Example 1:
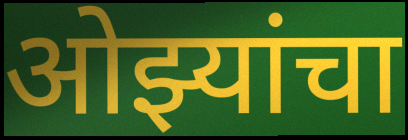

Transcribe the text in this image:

ओझ्यांचा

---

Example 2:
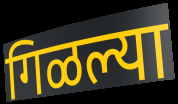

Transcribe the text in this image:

गिळल्या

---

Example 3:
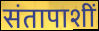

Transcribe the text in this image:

संतापाशीं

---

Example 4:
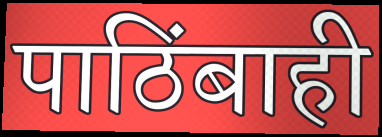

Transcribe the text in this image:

पाठिंबाही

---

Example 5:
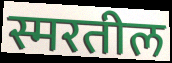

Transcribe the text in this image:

स्मरतील